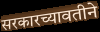
सरकारच्यावतीने